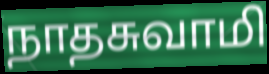
நாதசுவாமி